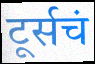
टूर्सचं